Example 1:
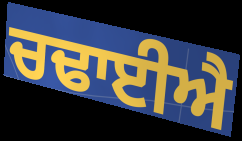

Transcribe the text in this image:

ਚਢਾਈਐ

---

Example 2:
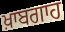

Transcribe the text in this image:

ਖ਼ਾਬਗਾਹ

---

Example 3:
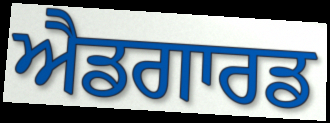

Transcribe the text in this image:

ਐਡਗਾਰਡ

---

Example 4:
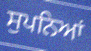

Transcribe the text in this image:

ਸੁਪਨਿਆਂ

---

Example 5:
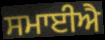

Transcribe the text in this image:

ਸਮਾਈਐ